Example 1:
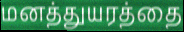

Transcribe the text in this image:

மனத்துயரத்தை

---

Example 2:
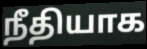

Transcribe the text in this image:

நீதியாக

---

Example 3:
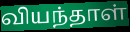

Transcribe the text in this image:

வியந்தாள்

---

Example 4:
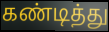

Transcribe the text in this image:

கண்டித்து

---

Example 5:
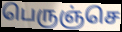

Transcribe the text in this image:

பெருஞ்செ